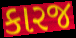
કારજ